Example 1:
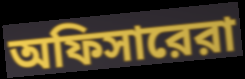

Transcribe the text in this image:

অফিসারেরা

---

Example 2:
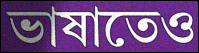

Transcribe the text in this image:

ভাষাতেও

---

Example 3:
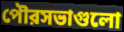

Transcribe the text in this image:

পৌরসভাগুলো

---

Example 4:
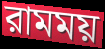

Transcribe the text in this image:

রামময়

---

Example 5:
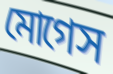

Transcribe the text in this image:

মোগেস